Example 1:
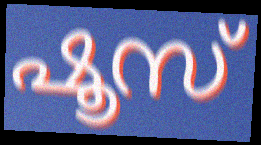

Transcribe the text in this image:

ഷൂസ്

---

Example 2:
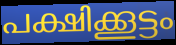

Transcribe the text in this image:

പക്ഷിക്കൂട്ടം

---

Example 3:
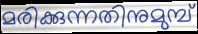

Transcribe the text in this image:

മരിക്കുന്നതിനുമുമ്പ്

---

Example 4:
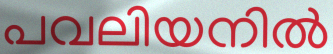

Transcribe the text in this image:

പവലിയനിൽ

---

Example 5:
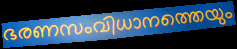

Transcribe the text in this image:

ഭരണസംവിധാനത്തെയും